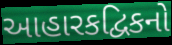
આહારકદ્વિકનો